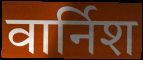
वार्निश